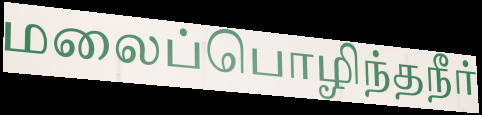
மலைப்பொழிந்தநீர்